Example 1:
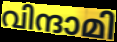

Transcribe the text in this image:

വിന്ദാമി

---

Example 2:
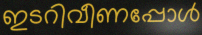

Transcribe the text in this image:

ഇടറിവീണപ്പോൾ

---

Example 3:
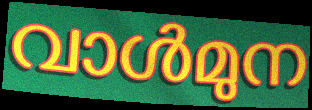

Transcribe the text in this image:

വാൾമുന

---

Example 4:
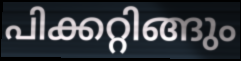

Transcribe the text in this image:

പിക്കറ്റിങ്ങും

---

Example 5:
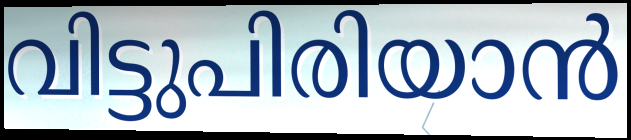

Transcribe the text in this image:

വിട്ടുപിരിയാൻ